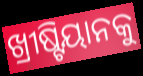
ଖ୍ରୀଷ୍ଟିୟାନକୁ